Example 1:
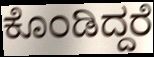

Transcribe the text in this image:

ಕೊಂಡಿದ್ದರೆ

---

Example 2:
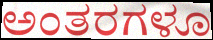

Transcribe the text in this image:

ಅಂತರಗಳೂ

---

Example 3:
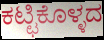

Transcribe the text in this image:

ಕಟ್ಟಿಕೊಳ್ಳದ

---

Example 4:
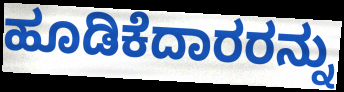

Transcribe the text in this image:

ಹೂಡಿಕೆದಾರರನ್ನು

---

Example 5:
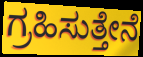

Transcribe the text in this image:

ಗ್ರಹಿಸುತ್ತೇನೆ